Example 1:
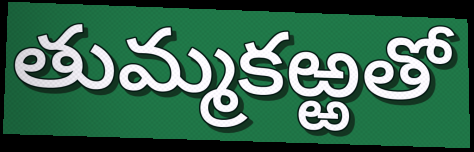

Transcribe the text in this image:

తుమ్మకఱ్ఱతో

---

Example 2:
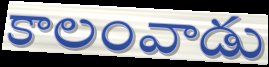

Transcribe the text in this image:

కాలంవాడు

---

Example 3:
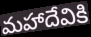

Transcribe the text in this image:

మహాదేవికి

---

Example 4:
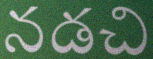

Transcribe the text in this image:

నడచి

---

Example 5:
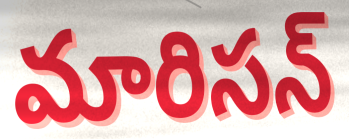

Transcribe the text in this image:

మారిసన్